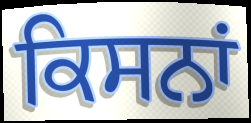
ਕਿਸਨਾਂ